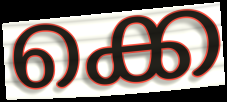
ക്കെ